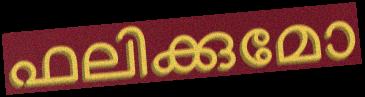
ഫലിക്കുമോ